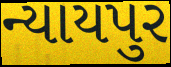
ન્યાયપુર